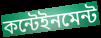
কন্টেইনমেন্ট